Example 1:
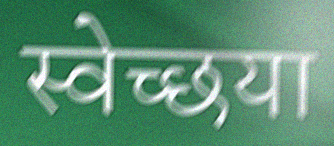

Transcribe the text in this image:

स्वेच्छया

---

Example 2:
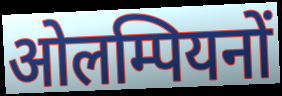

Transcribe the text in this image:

ओलम्पियनों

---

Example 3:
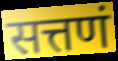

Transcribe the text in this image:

सत्तणं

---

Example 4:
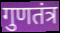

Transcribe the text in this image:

गुणतंत्र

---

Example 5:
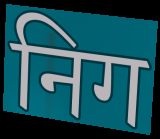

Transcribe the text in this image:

निग